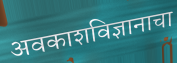
अवकाशविज्ञानाचा